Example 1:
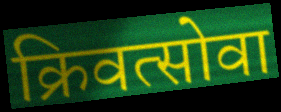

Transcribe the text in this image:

क्रिवत्सोवा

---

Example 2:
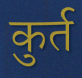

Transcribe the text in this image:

कुर्त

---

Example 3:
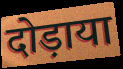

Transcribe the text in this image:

दोड़ाया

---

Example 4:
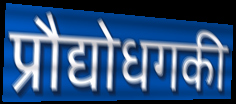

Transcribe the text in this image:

प्रौद्योधगकी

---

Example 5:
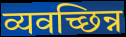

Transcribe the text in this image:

व्यवच्छिन्न